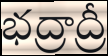
భద్రాద్రీ